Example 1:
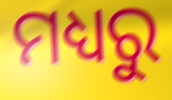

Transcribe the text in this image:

ମଧ୍ୟରୁ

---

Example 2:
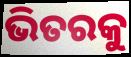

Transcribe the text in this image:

ଭିତରକୁ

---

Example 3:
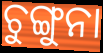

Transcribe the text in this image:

ଚୁଙ୍ଗୁନା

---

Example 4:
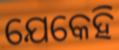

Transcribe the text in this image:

ଯେକେହି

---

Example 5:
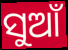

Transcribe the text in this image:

ସୁଆଁ